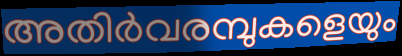
അതിർവരമ്പുകളെയും